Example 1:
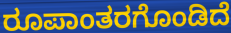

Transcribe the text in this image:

ರೂಪಾಂತರಗೊಂಡಿದೆ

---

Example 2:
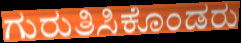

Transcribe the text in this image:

ಗುರುತಿಸಿಕೊಂಡರು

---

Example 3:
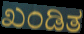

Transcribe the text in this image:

ಖಂಡಿತ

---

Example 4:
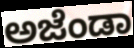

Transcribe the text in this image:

ಅಜೆಂಡಾ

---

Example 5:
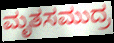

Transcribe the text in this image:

ಮೃತಸಮುದ್ರ